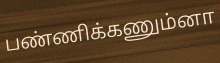
பண்ணிக்கணும்னா